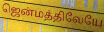
ஜென்மத்திலேயே